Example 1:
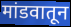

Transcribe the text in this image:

मांडवातून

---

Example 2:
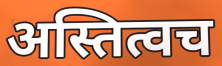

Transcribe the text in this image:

अस्तित्वच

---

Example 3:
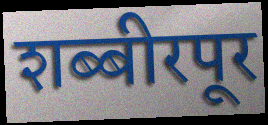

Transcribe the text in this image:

शब्बीरपूर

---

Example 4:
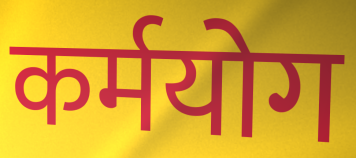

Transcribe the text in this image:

कर्मयोग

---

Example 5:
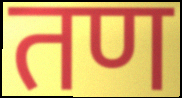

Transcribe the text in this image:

तण